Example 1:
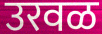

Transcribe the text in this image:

उरवळ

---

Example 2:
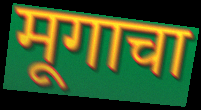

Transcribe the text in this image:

मूगाचा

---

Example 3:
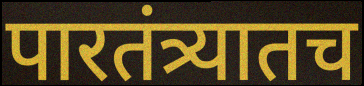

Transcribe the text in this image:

पारतंत्र्यातच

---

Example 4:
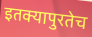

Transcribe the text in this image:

इतक्यापुरतेच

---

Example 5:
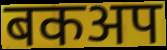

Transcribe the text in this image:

बकअप